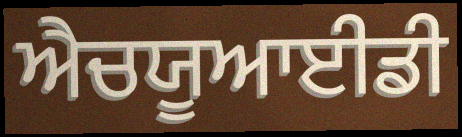
ਐਚਯੂਆਈਡੀ